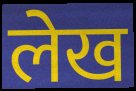
लेख